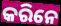
କରିନେ